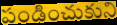
పండించుకుని